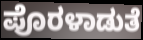
ಪೊರಳಾಡುತೆ